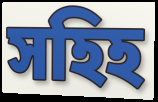
সহিহ